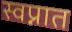
स्वप्नात